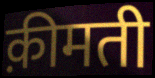
क़ीमती